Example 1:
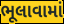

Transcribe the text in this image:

ભૂલાવામાં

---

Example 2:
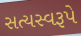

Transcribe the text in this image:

સત્યસ્વરૂપે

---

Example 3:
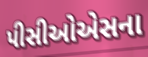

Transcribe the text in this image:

પીસીઓએસના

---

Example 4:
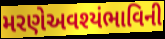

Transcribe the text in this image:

મરણેઅવશ્યંભાવિની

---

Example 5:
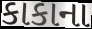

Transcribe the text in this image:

કાકાના